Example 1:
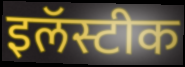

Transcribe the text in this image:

इलॅस्टीक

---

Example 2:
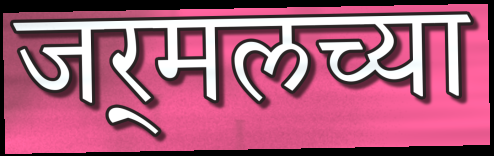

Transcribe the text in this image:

जर्मलच्या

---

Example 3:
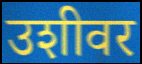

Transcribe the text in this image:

उशीवर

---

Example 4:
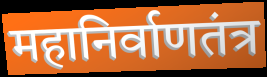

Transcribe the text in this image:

महानिर्वाणतंत्र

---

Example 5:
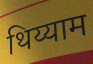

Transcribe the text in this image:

थिय्याम